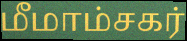
மீமாம்சகர்